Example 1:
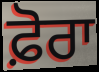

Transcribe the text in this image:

ਫ਼ੋਰਾ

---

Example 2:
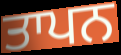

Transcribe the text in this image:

ਤਾਪਨ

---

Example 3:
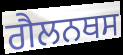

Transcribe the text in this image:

ਗੈਲਨਥਸ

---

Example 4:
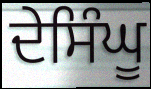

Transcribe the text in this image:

ਦੇਸਿੰਘੂ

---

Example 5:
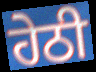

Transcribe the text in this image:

ਹੇਠੀ